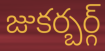
జుకర్బర్గ్